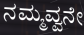
ನಮ್ಮವ್ವನೇ